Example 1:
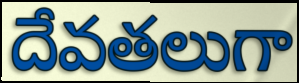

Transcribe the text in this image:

దేవతలుగా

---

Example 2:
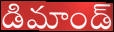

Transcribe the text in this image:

డిమాండ్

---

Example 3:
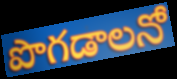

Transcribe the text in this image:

పొగడాలనో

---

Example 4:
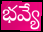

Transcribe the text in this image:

భవ్యే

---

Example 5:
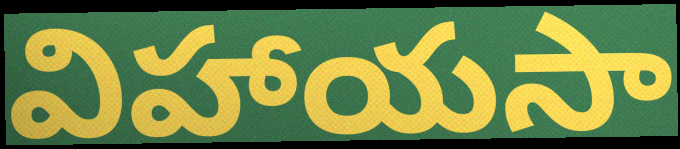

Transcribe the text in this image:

విహాయసా